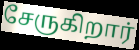
சேருகிறார்